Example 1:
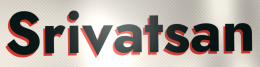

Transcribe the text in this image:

Srivatsan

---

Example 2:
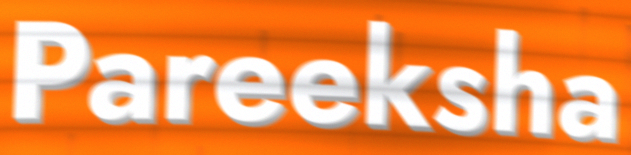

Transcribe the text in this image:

Pareeksha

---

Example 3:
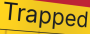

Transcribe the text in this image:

Trapped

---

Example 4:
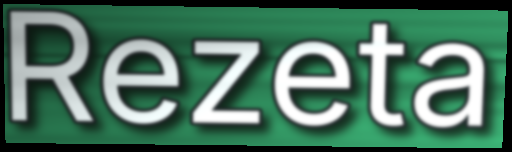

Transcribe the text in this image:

Rezeta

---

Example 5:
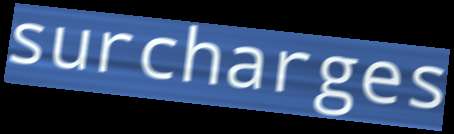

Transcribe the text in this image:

surcharges